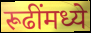
रूढींमध्ये